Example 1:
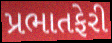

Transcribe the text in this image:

પ્રભાતફેરી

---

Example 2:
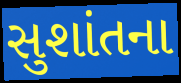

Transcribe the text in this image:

સુશાંતના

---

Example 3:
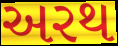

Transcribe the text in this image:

અરથ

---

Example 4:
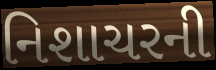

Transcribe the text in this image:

નિશાચરની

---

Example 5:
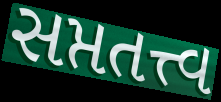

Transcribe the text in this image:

સપ્તતત્ત્વ